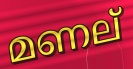
മണല്